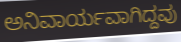
ಅನಿವಾರ್ಯವಾಗಿದ್ದವು